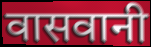
वासवानी